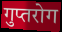
गुप्तरोग